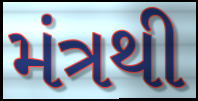
મંત્રથી